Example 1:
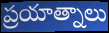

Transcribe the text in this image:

ప్రయాత్నాలు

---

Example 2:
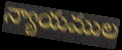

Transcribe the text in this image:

న్యాయముల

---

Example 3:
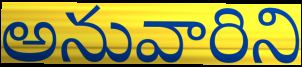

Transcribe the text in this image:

అనువారిని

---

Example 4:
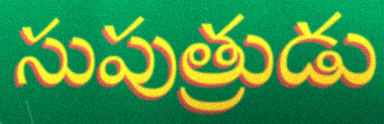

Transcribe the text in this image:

సుపుత్రుడు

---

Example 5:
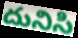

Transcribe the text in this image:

దునిసి